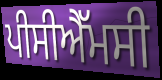
ਪੀਸੀਐੱਮਸੀ